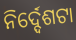
ନିର୍ଦ୍ଦେଶଟା